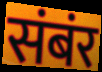
संबंर